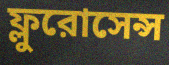
ফ্লুরোসেন্স